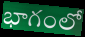
భాగంలో